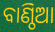
ବାଣ୍ଠିଆ